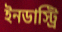
ইনডাস্ট্রি